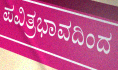
ಪವಿತ್ರಭಾವದಿಂದ